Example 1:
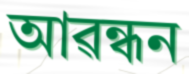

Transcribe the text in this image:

আৱন্ধন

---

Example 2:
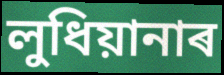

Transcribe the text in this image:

লুধিয়ানাৰ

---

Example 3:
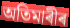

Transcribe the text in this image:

অতিমাৰীৰ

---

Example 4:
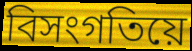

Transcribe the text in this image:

বিসংগতিয়ে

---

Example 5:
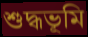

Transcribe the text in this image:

শুদ্ধভূমি